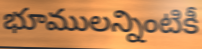
భూములన్నింటికీ